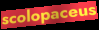
scolopaceus